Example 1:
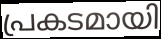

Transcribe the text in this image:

പ്രകടമായി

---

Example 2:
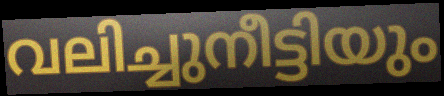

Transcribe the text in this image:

വലിച്ചുനീട്ടിയും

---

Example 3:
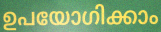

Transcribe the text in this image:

ഉപയോഗിക്കാം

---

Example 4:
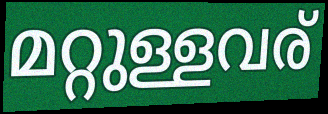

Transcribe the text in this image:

മറ്റുള്ളവര്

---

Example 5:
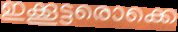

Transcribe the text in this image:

ഇക്കൂട്ടരൊക്കെ